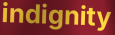
indignity